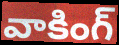
వాకింగ్